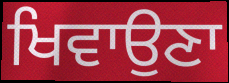
ਖਿਵਾਉਣਾ